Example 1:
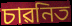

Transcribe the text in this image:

চাৱনিত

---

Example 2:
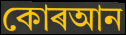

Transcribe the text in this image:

কোৰআন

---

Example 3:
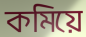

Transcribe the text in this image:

কমিয়ে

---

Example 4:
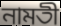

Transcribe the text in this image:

নামতী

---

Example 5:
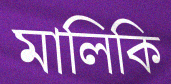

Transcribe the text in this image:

মালিকি